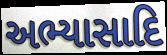
અભ્યાસાદિ